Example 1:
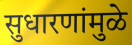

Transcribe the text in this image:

सुधारणांमुळे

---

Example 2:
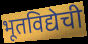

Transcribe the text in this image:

भूतविद्येची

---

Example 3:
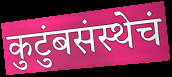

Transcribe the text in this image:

कुटुंबसंस्थेचं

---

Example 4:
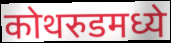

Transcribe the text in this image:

कोथरुडमध्ये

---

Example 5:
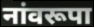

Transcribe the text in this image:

नांवरूपा